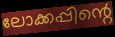
ലോക്കപ്പിന്റെ